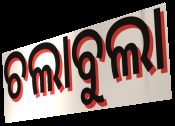
ଚଲାବୁଲା